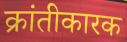
क्रांतीकारक